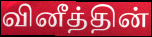
வினீத்தின்